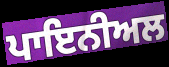
ਪਾਇਨੀਅਲ